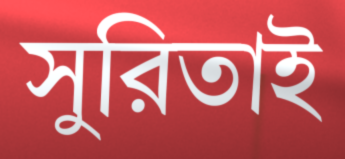
সুরিতাই